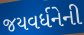
જયવર્ધનેની